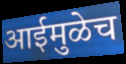
आईमुळेच